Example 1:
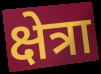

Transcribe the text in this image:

क्षेत्रा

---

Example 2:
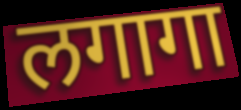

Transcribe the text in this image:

लगागा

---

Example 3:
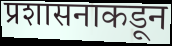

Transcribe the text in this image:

प्रशासनाकडून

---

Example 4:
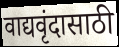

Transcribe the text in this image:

वाद्यवृंदासाठी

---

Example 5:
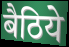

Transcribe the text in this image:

बैठिये